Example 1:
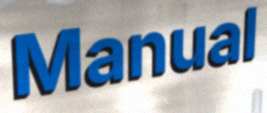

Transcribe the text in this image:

Manual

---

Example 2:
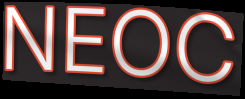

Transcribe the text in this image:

NEOC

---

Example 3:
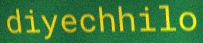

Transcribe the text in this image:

diyechhilo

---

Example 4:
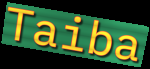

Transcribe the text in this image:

Taiba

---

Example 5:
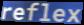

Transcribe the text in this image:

reflex